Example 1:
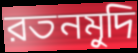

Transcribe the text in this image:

রতনমুদি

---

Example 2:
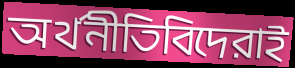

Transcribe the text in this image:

অর্থনীতিবিদেরাই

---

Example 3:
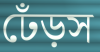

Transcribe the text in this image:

ঢেঁড়স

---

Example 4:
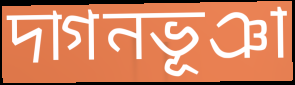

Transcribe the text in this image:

দাগনভূঞা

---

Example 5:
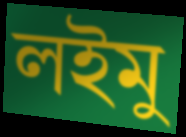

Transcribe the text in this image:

লইমু